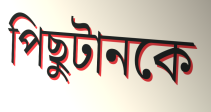
পিছুটানকে